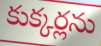
కుక్కర్లను